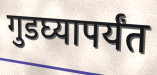
गुडघ्यापर्यंत